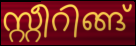
സ്റ്റീറിങ്ങ്